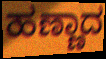
ಹಣ್ಣಾದ